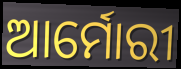
ଆର୍ମୋରୀ